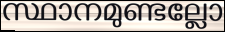
സ്ഥാനമുണ്ടല്ലോ